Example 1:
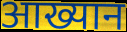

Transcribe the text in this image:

आख्यान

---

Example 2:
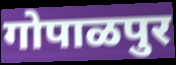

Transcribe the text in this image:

गोपाळपुर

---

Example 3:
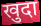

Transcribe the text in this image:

खुदा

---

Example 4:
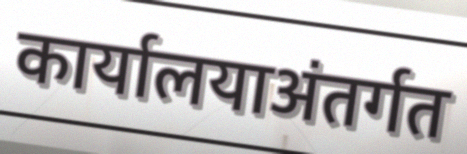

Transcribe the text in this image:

कार्यालयाअंतर्गत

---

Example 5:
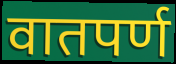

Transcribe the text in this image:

वातपर्ण